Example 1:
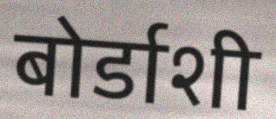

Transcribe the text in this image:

बोर्डाशी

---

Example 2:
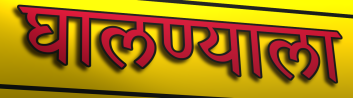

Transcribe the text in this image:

घालण्याला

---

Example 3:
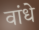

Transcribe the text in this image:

वांधे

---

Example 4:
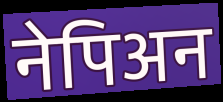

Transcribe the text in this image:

नेपिअन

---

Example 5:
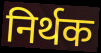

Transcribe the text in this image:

निर्थक